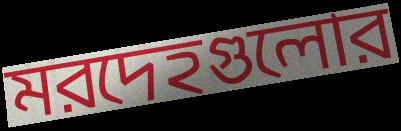
মরদেহগুলোর